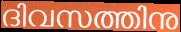
ദിവസത്തിനു